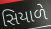
સિયાળે